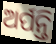
ଅର୍ପନ୍ତି